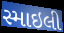
સ્માઇલી